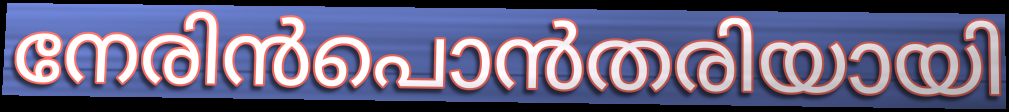
നേരിൻപൊൻതരിയായി